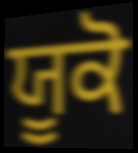
ਯੂਕੋ